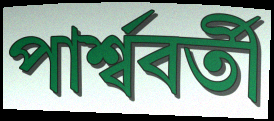
পাৰ্শ্ববৰ্তী